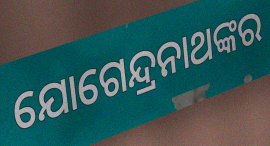
ଯୋଗେନ୍ଦ୍ରନାଥଙ୍କର